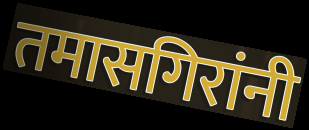
तमासगिरांनी